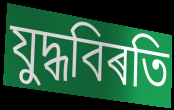
যুদ্ধবিৰতি